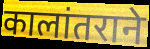
कालांतराने